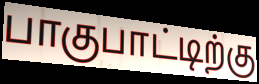
பாகுபாட்டிற்கு